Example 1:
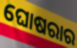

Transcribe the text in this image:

ଘୋଷରାର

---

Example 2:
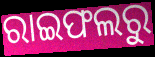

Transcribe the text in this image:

ରାଇଫଲରୁ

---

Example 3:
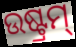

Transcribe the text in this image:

ଉଷ୍ଟ୍ରମ୍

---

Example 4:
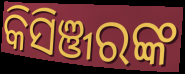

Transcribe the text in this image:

କିସିଞ୍ଜରଙ୍କ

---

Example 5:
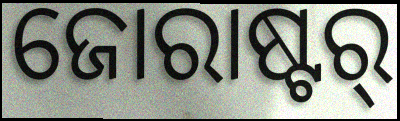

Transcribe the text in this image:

ଜୋରାଷ୍ଟର୍